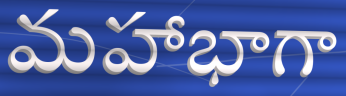
మహాభాగా